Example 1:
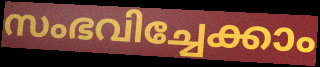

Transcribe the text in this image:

സംഭവിച്ചേക്കാം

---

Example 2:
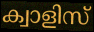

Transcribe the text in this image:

ക്വാളിസ്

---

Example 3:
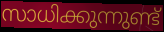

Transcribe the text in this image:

സാധിക്കുന്നുണ്ട്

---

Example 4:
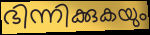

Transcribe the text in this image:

ഭിന്നിക്കുകയും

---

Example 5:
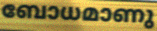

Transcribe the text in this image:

ബോധമാണു